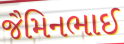
જૈમિનભાઈ